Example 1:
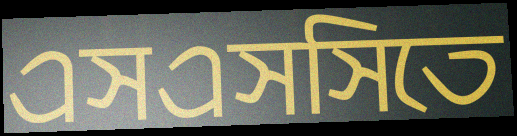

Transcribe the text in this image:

এসএসসিতে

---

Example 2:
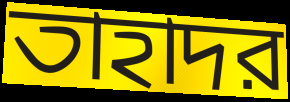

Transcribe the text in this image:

তাহাদর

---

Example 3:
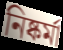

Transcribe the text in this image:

নিষ্কর্মা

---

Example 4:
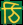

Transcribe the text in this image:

ঠি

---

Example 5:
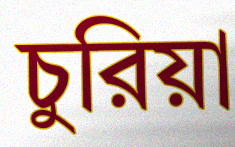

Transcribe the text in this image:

চুরিয়া